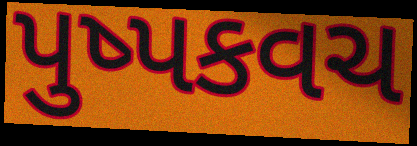
પુષ્પકવચ